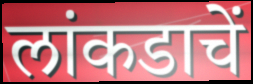
लांकडाचें